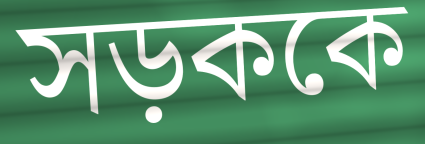
সড়ককে